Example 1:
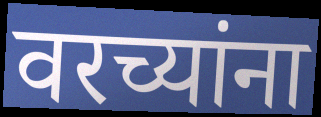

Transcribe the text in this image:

वरच्यांना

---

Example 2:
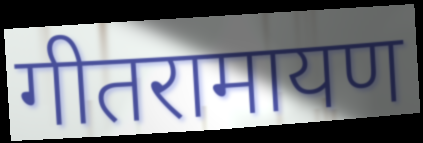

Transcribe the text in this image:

गीतरामायण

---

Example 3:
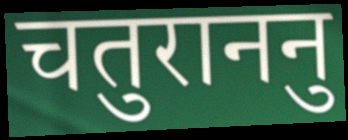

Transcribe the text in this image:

चतुराननु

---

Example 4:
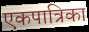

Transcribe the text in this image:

एकपात्रिका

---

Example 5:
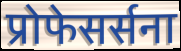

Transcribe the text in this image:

प्रोफेसर्सना